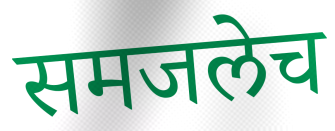
समजलेच